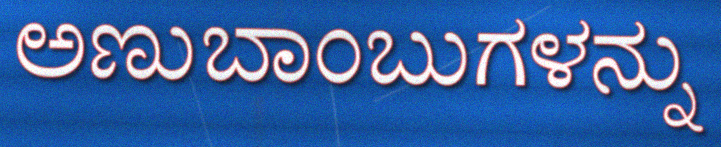
ಅಣುಬಾಂಬುಗಳನ್ನು